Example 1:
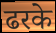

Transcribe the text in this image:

ढरके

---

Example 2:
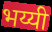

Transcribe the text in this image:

भय्यी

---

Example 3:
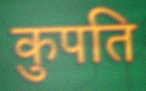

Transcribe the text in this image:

कुपति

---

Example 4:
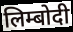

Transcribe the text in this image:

लिम्बोदी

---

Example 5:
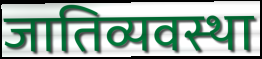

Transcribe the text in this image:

जातिव्यवस्था